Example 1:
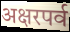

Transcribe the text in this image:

अक्षरपर्व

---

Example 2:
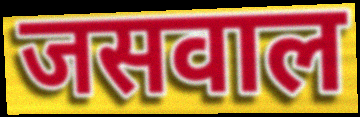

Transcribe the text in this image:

जसवाल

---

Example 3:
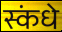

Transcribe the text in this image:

स्कंधे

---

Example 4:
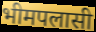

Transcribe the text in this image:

भीमपलासी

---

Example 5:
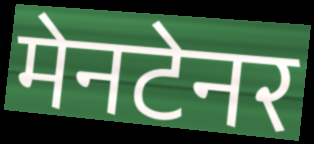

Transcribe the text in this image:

मेनटेनर